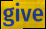
give